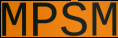
MPSM